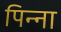
पिन्ना